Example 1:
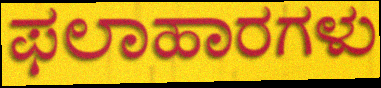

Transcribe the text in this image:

ಫಲಾಹಾರಗಳು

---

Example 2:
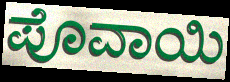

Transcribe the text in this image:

ಪೊವಾಯಿ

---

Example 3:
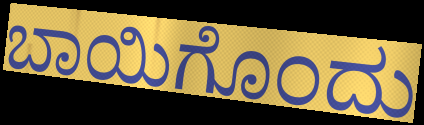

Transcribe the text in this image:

ಬಾಯಿಗೊಂದು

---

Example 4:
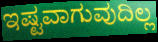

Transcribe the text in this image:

ಇಷ್ಟವಾಗುವುದಿಲ್ಲ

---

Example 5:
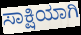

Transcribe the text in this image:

ಸಾಕ್ಷಿಯಾಗಿ